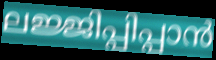
ലജ്ജിപ്പിപ്പാൻ